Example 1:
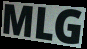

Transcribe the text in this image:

MLG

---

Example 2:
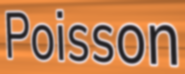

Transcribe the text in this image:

Poisson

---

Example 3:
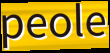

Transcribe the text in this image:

peole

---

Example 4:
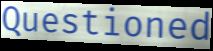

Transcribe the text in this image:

Questioned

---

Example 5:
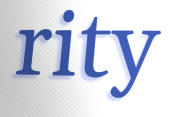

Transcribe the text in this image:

rity